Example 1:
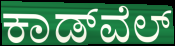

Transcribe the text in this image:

ಕಾಡ್‌ವೆಲ್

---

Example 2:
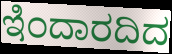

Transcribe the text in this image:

ಇಿಂದಾರದಿದ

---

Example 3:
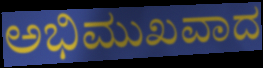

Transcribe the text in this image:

ಅಭಿಮುಖವಾದ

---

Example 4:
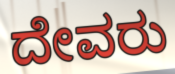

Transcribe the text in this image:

ದೇವರು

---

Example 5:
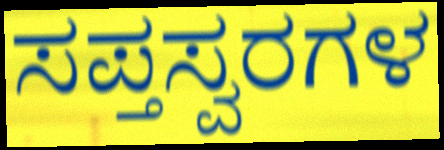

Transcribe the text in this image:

ಸಪ್ತಸ್ವರಗಳ